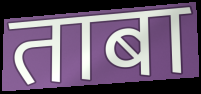
ताबा